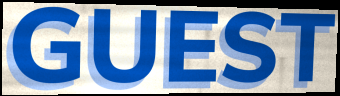
GUEST